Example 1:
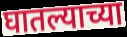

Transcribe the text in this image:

घातल्याच्या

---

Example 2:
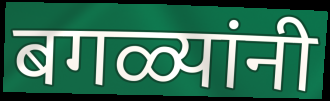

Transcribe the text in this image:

बगळ्यांनी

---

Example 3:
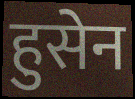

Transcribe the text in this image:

हुसेन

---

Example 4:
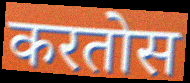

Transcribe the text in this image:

करतोस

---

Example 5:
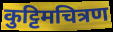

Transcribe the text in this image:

कुट्टिमचित्रण